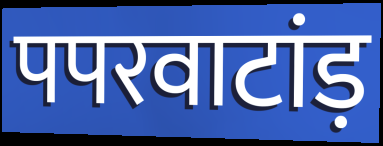
पपरवाटांड़